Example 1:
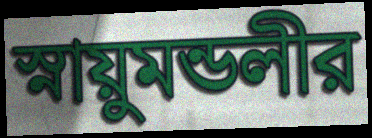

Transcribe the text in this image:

স্নায়ুমন্ডলীর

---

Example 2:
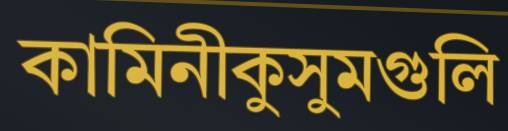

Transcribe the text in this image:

কামিনীকুসুমগুলি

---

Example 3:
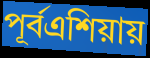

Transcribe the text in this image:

পূর্বএশিয়ায়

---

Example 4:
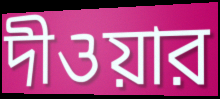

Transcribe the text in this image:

দীওয়ার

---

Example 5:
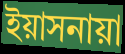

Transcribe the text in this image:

ইয়াসনায়া